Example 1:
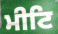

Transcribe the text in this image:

ਮੀਟਿ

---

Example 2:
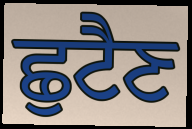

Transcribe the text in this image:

ਛੁਟੈਣ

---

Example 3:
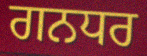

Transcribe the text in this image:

ਗਨਧਰ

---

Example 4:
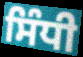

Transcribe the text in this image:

ਸਿੰਧੀ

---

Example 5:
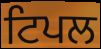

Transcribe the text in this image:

ਟਿਪਲ